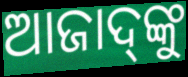
ଆଜାଦ୍‌ଙ୍କୁ